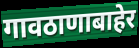
गावठाणाबाहेर